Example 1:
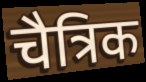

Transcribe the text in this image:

चैत्रिक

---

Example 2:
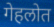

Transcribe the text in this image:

गेहलोत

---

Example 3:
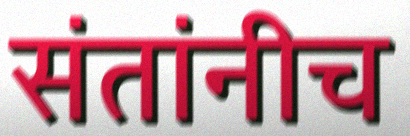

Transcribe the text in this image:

संतांनीच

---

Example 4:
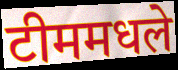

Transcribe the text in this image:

टीममधले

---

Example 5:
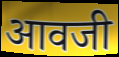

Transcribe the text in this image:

आवजी